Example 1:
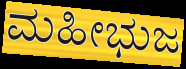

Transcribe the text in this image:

ಮಹೀಭುಜ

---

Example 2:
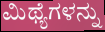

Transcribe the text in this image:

ಮಿಥ್ಯೆಗಳನ್ನು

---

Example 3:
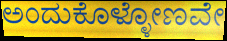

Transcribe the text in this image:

ಅಂದುಕೊಳ್ಳೋಣವೇ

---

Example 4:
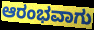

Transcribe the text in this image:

ಆರಂಭವಾಗು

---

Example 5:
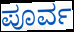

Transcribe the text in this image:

ಪೂರ್ವ